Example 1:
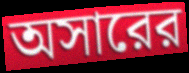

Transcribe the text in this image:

অসারের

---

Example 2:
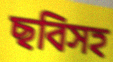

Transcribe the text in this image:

ছবিসহ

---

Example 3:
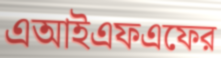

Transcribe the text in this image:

এআইএফএফের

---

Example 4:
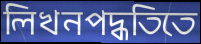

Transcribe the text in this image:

লিখনপদ্ধতিতে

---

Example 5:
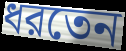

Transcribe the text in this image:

ধরতেন